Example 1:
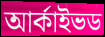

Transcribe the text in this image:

আর্কাইভড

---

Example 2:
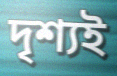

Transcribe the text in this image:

দৃশ্যই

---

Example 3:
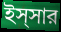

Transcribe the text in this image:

ইস্সার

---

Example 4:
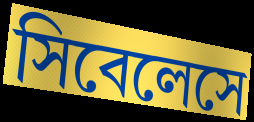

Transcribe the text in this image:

সিবেলেসে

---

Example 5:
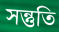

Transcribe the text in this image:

সন্তুতি